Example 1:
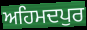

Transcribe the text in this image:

ਅਹਿਮਦਪੁਰ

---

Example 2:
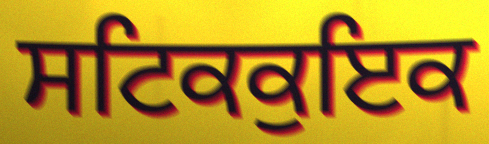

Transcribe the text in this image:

ਸਟਿਕਕੁਇਕ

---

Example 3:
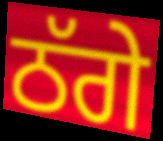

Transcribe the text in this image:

ਠੱਗੇ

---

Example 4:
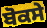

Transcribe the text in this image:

ਬੋਕਸੇ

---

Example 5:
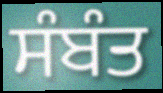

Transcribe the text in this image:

ਸੰਬੰਤ